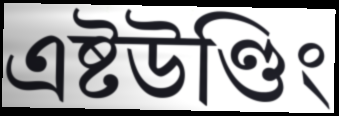
এষ্টউণ্ডিং